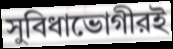
সুবিধাভোগীরই